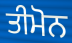
ਤੀਮੋਨ